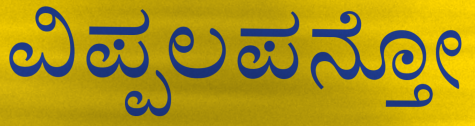
ವಿಪ್ಪಲಪನ್ತೋ